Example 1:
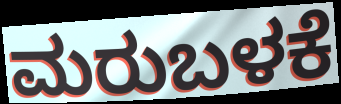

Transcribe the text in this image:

ಮರುಬಳಕೆ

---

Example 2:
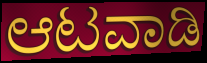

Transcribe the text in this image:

ಆಟವಾಡಿ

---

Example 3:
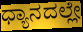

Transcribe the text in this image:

ಧ್ಯಾನದಲ್ಲೇ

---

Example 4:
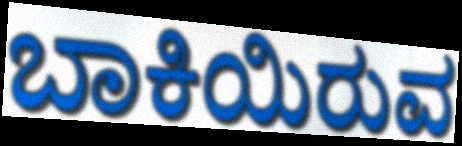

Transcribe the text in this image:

ಬಾಕಿಯಿರುವ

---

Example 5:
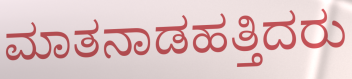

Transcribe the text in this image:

ಮಾತನಾಡಹತ್ತಿದರು